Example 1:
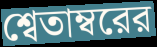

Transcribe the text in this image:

শ্বেতাম্বরের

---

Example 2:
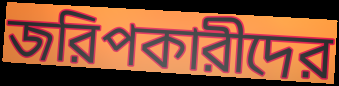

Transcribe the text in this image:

জরিপকারীদের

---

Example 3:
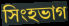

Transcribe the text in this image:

সিংহভাগ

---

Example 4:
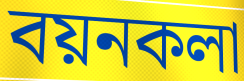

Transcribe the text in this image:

বয়নকলা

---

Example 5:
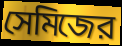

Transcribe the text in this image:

সেমিজের